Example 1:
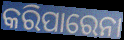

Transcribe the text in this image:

କରିପାରେନା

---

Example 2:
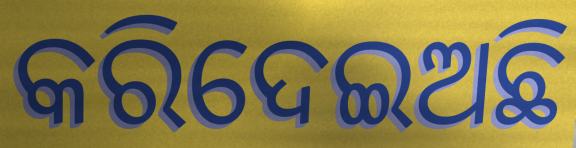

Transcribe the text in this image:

କରିଦେଇଅଛି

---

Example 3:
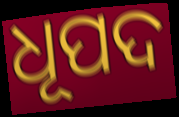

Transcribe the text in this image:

ଧୂପଦ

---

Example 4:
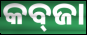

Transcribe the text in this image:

କବ୍‌ଜା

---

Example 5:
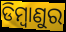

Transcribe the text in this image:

ଡିମ୍ବାଣୁର